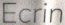
Ecrin